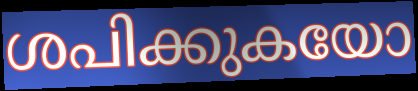
ശപിക്കുകയോ